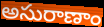
అసురాణాం